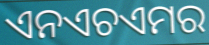
ଏନଏଚଏମର